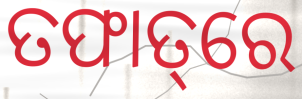
ତଫାତ୍‌ରେ